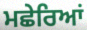
ਮਛੇਰਿਆਂ